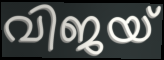
വിജയ്